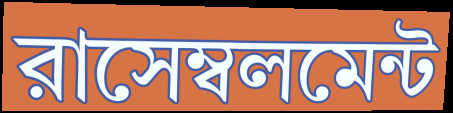
রাসেম্বলমেন্ট